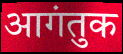
आगंतुक